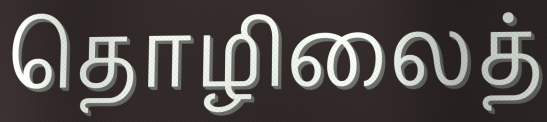
தொழிலைத்